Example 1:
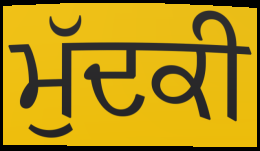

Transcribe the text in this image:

ਮੁੱਦਕੀ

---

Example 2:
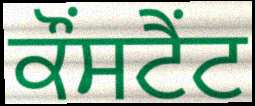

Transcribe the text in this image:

ਕੌਂਸਟੈਂਟ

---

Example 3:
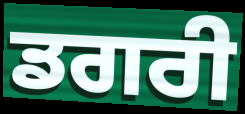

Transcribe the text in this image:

ਡਗਰੀ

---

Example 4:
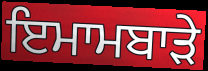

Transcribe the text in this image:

ਇਮਾਮਬਾੜੇ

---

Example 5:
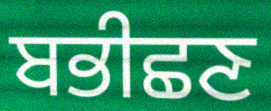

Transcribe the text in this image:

ਬਭੀਛਣ